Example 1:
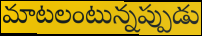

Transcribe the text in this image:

మాటలంటున్నప్పుడు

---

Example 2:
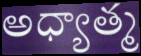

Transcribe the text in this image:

అధ్యాత్మ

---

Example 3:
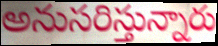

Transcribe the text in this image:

అనుసరిస్తున్నారు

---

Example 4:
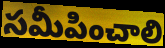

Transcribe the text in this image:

సమీపించాలి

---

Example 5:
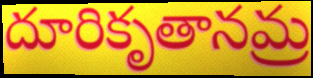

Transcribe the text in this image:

దూరికృతానమ్ర